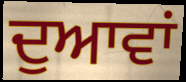
ਦੁਆਵਾਂ